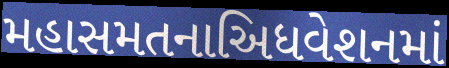
મહાસમતનાઅિધવેશનમાં